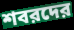
শবরদের